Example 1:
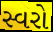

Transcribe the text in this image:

સ્વરો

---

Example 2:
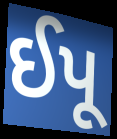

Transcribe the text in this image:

ઈપૂ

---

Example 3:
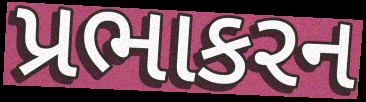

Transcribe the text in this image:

પ્રભાકરન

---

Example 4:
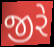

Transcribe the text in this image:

જીરે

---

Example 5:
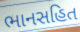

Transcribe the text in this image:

ભાનસહિત